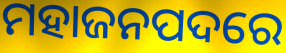
ମହାଜନପଦରେ